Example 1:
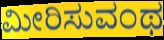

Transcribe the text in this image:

ಮೀರಿಸುವಂಥ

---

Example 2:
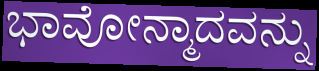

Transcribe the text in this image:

ಭಾವೋನ್ಮಾದವನ್ನು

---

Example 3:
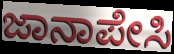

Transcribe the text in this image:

ಜಾನಾಪೇಸಿ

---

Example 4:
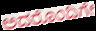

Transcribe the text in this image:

ಅದರೊಂದಿಗೇ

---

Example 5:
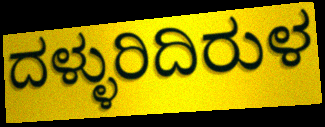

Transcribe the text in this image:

ದಳ್ಳುರಿದಿರುಳ